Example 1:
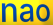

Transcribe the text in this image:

nao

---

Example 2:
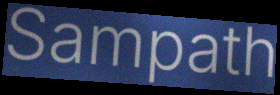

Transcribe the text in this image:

Sampath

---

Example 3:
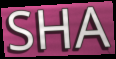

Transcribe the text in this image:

SHA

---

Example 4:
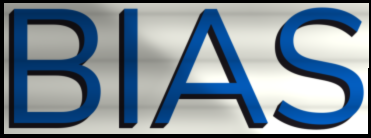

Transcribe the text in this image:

BIAS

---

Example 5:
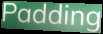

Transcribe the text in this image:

Padding